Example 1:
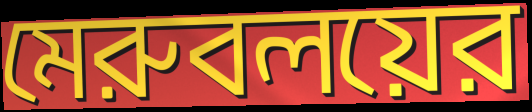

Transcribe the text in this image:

মেরুবলয়ের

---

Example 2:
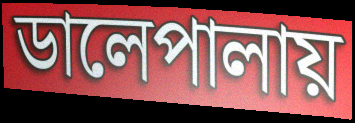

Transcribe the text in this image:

ডালেপালায়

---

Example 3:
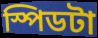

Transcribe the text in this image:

স্পিডটা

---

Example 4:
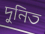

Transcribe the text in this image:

দুনিত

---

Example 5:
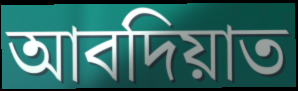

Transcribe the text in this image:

আবদিয়াত